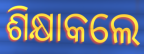
ଶିକ୍ଷାକଲେ